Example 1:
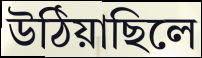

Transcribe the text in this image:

উঠিয়াছিলে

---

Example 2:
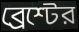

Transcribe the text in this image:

ব্রেশ্টের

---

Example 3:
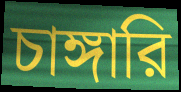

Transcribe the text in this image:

চাঙ্গারি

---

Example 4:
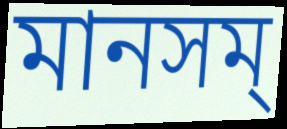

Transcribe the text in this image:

মানসম্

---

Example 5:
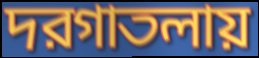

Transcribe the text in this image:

দরগাতলায়